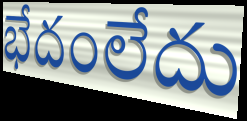
భేదంలేదు